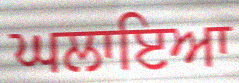
ਘਲਾਇਆ